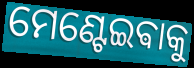
ମେଣ୍ଟେଇଵାକୁ